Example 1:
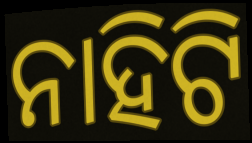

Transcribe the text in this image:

ନାହିଟି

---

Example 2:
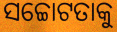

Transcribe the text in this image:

ସଚ୍ଚୋଟତାକୁ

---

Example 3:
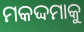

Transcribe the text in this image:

ମକଦ୍ଦମାକୁ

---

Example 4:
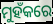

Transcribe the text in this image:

ମୁହଁକରେ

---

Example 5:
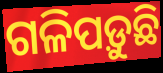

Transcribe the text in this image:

ଗଳିପଡ଼ୁଛି